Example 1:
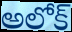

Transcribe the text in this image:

అలోక్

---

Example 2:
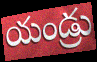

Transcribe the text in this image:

యండ్రు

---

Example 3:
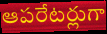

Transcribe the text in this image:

ఆపరేటర్లుగా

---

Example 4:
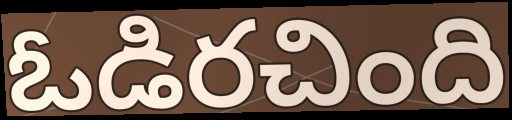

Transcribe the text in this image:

ఓడిరచింది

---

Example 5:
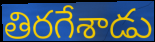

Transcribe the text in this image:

తిరగేశాడు